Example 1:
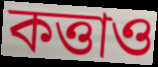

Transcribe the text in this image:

কত্তাও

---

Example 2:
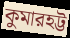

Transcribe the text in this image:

কুমারহট্ট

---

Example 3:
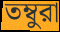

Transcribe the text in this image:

তম্বুরা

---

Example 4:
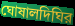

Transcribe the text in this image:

ঘোষালদিঘির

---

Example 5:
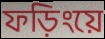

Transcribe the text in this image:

ফড়িংয়ে